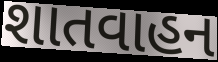
શાતવાહન